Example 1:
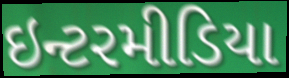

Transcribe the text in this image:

ઇન્ટરમીડિયા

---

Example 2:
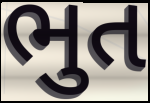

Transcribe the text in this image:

ભુત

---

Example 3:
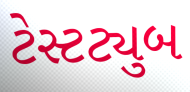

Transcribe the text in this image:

ટેસ્ટટ્યુબ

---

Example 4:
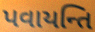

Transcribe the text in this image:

પવાયન્તિ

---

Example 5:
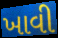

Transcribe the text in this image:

ખાવી